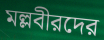
মল্লবীরদের